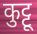
कुट्टू